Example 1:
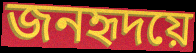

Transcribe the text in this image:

জনহৃদয়ে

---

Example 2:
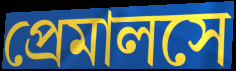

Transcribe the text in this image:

প্রেমালসে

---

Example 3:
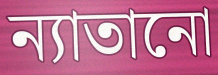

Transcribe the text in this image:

ন্যাতানো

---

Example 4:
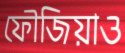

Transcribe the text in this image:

ফৌজিয়াও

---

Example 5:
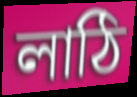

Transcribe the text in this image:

লাঠি